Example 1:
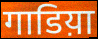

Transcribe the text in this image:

गाडिय़ा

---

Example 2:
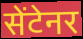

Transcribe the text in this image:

सेंटेनर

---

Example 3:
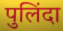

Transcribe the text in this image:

पुलिंदा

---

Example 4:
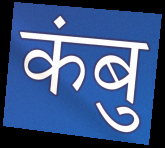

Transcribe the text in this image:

कंबु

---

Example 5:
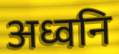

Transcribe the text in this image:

अध्वनि